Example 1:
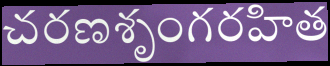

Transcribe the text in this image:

చరణశృంగరహిత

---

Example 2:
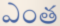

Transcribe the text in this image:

ఎంత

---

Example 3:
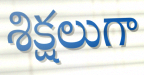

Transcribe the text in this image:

శిక్షలుగా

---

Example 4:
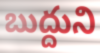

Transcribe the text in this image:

బుద్దుని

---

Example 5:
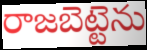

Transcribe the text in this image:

రాజబెట్టెను